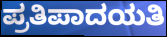
ಪ್ರತಿಪಾದಯತಿ